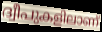
ദ്വീപുകളിലാണ്